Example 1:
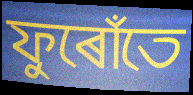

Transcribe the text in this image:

ফুৰোঁতে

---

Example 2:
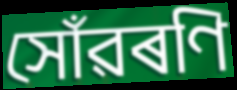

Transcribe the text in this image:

সোঁৱৰণি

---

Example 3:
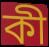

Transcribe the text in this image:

কী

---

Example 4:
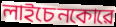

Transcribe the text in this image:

লাইচেনকোৱে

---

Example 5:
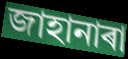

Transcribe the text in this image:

জাহানাৰা